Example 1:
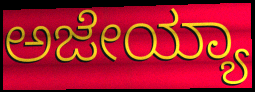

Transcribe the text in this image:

ಅಜೇಯ್ಯಾ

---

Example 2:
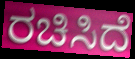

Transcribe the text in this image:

ರಚಿಸಿದೆ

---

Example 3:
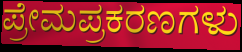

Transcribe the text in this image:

ಪ್ರೇಮಪ್ರಕರಣಗಳು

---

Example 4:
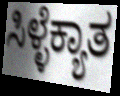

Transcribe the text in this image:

ಸಿಳ್ಳೆಕ್ಯಾತ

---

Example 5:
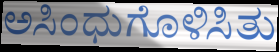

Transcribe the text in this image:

ಅಸಿಂಧುಗೊಳಿಸಿತು